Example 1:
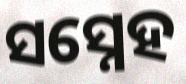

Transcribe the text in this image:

ସସ୍ନେହ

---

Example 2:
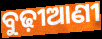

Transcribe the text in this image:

ବୁଢ଼ୀଆଣୀ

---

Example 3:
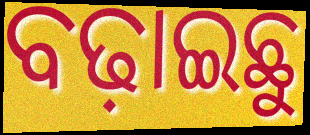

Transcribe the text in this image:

ବଢ଼ାଇଛୁ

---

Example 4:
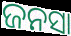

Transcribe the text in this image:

ଜନସା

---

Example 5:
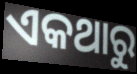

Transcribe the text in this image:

ଏକଥାରୁ